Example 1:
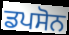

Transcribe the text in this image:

ਡਪਸੋਨ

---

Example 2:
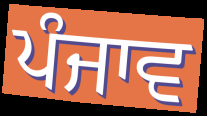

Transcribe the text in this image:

ਪੰਜਾਵ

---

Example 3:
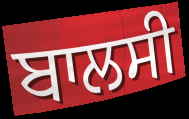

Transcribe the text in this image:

ਬਾਲਸੀ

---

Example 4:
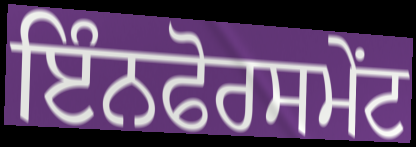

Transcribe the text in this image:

ਇੰਨਫੋਰਸਮੇਂਟ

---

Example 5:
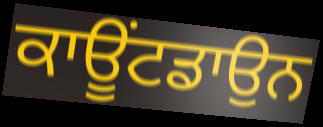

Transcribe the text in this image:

ਕਾਊਂਟਡਾਉਨ